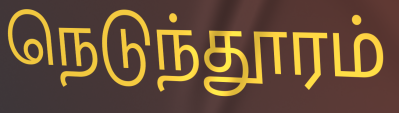
நெடுந்தூரம்